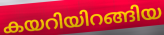
കയറിയിറങ്ങിയ